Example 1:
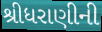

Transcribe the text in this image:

શ્રીધરાણીની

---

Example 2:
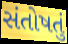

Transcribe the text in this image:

સંતોષતું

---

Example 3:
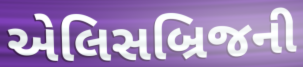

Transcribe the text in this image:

એલિસબ્રિજની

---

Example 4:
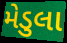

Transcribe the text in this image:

મેડુલા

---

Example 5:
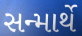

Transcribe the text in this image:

સન્માર્થે